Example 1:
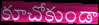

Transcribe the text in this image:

కూచోకుండా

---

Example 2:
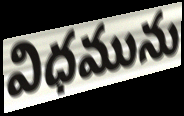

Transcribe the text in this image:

విధమును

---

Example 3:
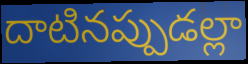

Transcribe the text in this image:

దాటినప్పుడల్లా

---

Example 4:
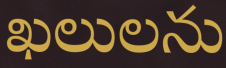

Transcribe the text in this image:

ఖలులను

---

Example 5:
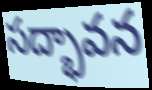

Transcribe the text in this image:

సద్భావన